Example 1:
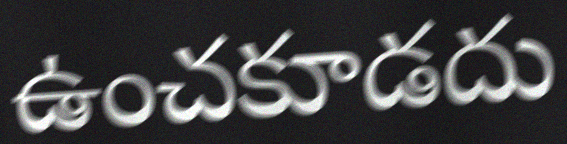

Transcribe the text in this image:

ఉంచకూడదు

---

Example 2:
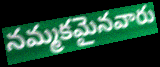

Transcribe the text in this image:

నమ్మకమైనవారు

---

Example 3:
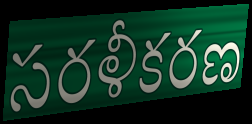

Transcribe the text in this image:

సరళీకరణ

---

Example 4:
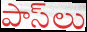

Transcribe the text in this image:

పాస్‌లు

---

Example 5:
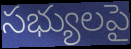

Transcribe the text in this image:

సభ్యులపై